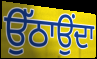
ਉੱਠਾਉਂਦਾ